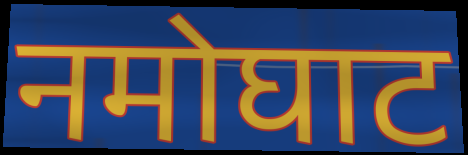
नमोघाट